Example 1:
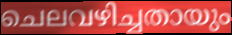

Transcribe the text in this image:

ചെലവഴിച്ചതായും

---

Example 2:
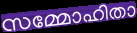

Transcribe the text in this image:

സമ്മോഹിതാ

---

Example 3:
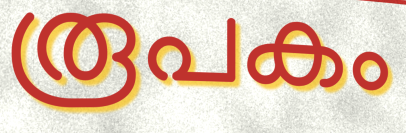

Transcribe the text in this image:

രൂപകം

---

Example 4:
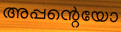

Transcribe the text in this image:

അപ്പന്റെയോ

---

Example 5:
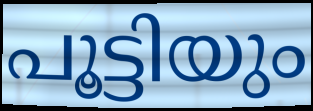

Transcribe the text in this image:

പൂട്ടിയും